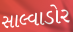
સાલ્વાડોર